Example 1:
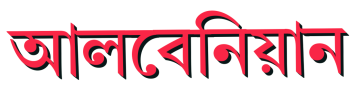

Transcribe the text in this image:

আলবেনিয়ান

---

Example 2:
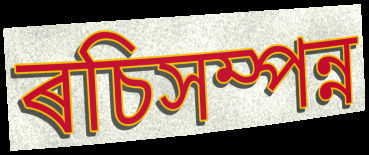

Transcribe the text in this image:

ৰচিসম্পন্ন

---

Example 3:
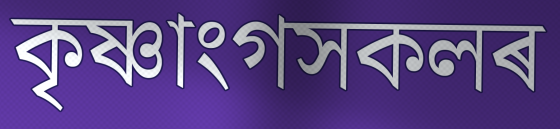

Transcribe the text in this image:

কৃষ্ণাংগসকলৰ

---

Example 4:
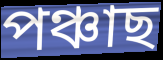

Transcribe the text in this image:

পঞ্চাছ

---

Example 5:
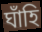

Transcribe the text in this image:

ঘাঁহি